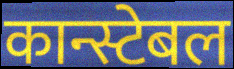
कान्स्टेबल